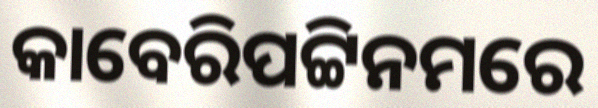
କାବେରିପଟ୍ଟିନମରେ